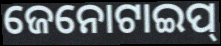
ଜେନୋଟାଇପ୍